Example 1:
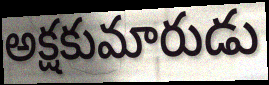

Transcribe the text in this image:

అక్షకుమారుడు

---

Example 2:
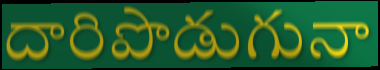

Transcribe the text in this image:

దారిపొడుగునా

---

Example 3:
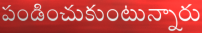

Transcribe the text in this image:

పండించుకుంటున్నారు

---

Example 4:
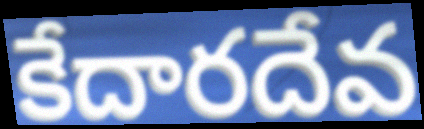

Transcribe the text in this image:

కేదారదేవ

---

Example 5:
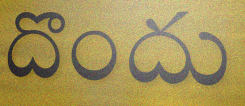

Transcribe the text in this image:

దొందు